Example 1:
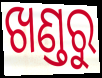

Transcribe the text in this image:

ଖଣ୍ଡରୁ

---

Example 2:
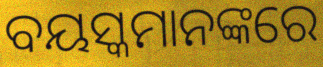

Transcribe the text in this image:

ବୟସ୍କମାନଙ୍କରେ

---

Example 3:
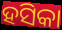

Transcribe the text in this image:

ହସିକା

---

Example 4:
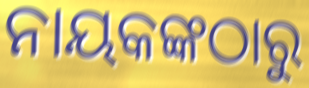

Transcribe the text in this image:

ନାୟକଙ୍କଠାରୁ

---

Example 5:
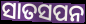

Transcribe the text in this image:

ସାତସପନ